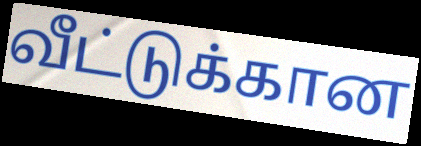
வீட்டுக்கான